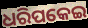
ଧରିପକେଇ